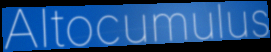
Altocumulus